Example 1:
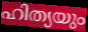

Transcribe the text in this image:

ഹിത്യയും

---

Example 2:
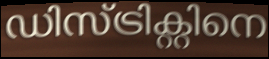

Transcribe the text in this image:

ഡിസ്ട്രിക്റ്റിനെ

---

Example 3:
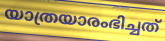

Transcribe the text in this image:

യാത്രയാരംഭിച്ചത്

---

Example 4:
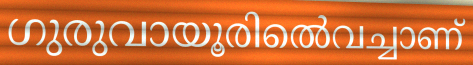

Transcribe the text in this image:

ഗുരുവായൂരിൽെവച്ചാണ്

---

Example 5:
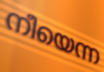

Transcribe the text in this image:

നീയെന്ന